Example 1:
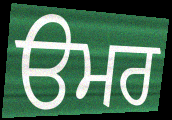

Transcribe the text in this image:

ੳਮਰ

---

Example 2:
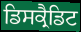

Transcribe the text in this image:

ਡਿਸਕ੍ਰੈਡਿਟ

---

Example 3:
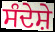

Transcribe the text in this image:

ਸੰਦੇਸ਼ੇ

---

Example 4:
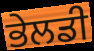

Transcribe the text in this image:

ਭੇਲਡੀ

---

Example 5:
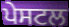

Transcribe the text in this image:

ਪੇਸਟਲ